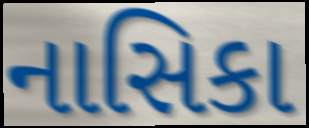
નાસિકા